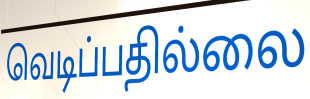
வெடிப்பதில்லை